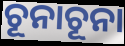
ଚୂନାଚୂନା